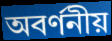
অবর্ণনীয়